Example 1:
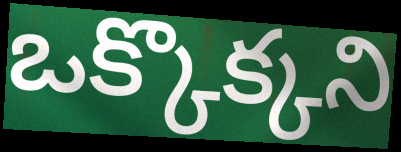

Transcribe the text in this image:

ఒక్కొక్కని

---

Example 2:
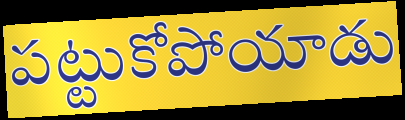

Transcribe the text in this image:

పట్టుకోపోయాడు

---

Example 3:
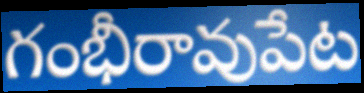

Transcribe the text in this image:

గంభీరావుపేట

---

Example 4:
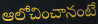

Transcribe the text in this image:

ఆలోచించానంటే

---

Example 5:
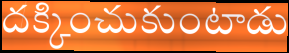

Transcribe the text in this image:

దక్కించుకుంటాడు